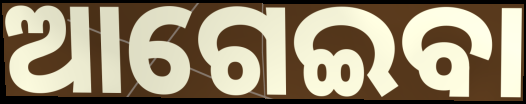
ଆଗେଇବା